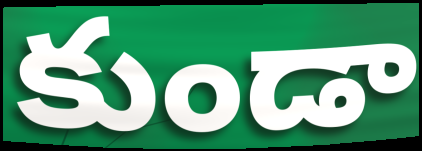
కుండా